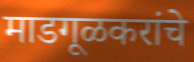
माडगूळकरांचे